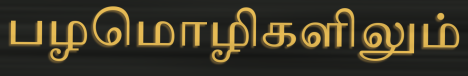
பழமொழிகளிலும்